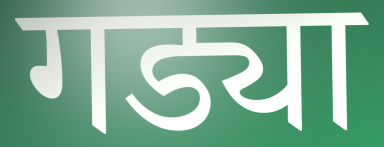
गड्या